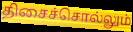
திசைச்சொல்லும்